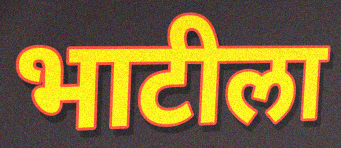
भाटीला